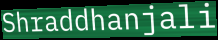
Shraddhanjali